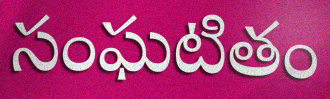
సంఘటితం